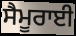
ਸੈਮੂਰਾਈ